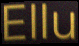
Ellu